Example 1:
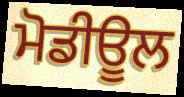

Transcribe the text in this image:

ਮੋਡੀਊਲ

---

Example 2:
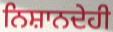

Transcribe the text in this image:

ਨਿਸ਼ਾਨਦੇਹੀ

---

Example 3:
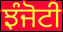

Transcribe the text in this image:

ਝੰਜੋਟੀ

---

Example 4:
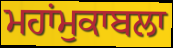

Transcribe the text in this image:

ਮਹਾਂਮੁਕਾਬਲਾ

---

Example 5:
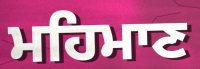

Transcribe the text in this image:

ਮਹਿਮਾਣ